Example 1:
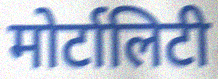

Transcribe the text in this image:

मोर्टालिटी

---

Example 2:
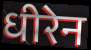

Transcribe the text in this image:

धीरेन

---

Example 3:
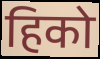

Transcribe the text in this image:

हिको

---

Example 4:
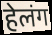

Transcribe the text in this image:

हेलंग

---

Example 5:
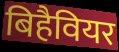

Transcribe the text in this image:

बिहैवियर